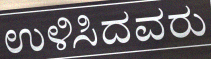
ಉಳಿಸಿದವರು